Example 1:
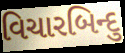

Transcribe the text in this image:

વિચારબિન્દુ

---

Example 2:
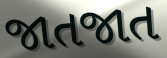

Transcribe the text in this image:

જાતજાત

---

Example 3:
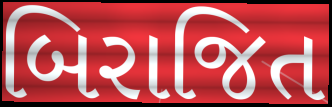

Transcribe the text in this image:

બિરાજિત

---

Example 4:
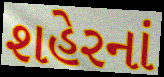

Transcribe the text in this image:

શહેરનાં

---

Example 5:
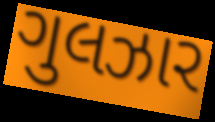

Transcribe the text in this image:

ગુલઝાર